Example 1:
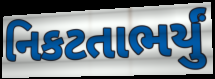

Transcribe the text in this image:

નિકટતાભર્યું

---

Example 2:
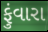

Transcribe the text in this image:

ફુંવારા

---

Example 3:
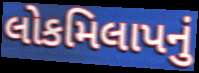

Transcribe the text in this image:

લોકમિલાપનું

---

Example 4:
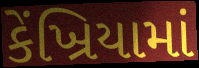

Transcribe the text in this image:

કેંખ્રિયામાં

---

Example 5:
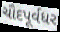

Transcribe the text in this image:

ચૌદપૂર્વધર